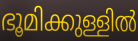
ഭൂമിക്കുള്ളിൽ